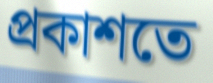
প্রকাশতে